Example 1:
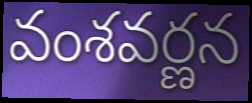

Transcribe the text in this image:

వంశవర్ణన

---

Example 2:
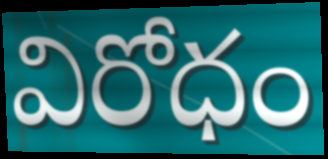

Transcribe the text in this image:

విరోధం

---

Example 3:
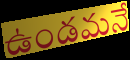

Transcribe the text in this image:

ఉండమనే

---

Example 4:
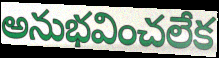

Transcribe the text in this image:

అనుభవించలేక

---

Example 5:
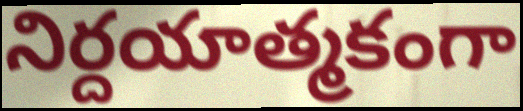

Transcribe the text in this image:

నిర్దయాత్మకంగా